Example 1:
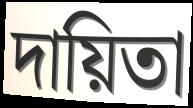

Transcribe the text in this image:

দায়িতা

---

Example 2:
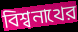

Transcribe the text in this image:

বিশ্বনাথের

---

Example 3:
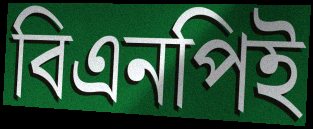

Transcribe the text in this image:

বিএনপিই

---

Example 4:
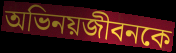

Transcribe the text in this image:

অভিনয়জীবনকে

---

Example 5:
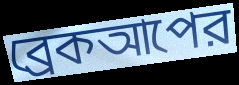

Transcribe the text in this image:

ব্রেকআপের